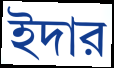
ইদার